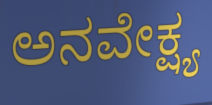
ಅನವೇಕ್ಷ್ಯ